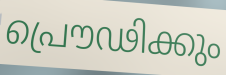
പ്രൌഢിക്കും